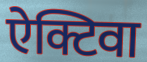
ऐक्टिवा